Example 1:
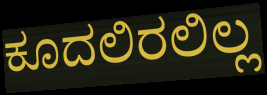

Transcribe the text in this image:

ಕೂದಲಿರಲಿಲ್ಲ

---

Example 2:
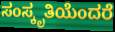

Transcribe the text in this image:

ಸಂಸ್ಕೃತಿಯೆಂದರೆ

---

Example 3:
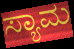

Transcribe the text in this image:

ಸ್ಯಾಮ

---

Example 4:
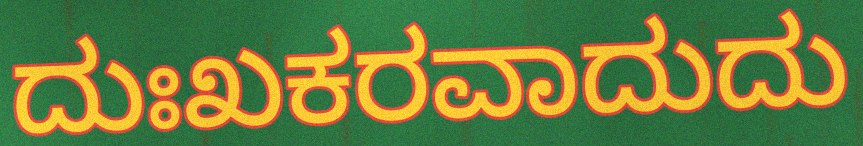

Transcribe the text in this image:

ದುಃಖಕರವಾದುದು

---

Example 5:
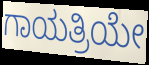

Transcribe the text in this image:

ಗಾಯತ್ರಿಯೇ